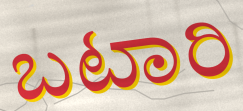
ಬಟಾರಿ